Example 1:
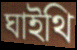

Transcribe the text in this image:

ঘাইথি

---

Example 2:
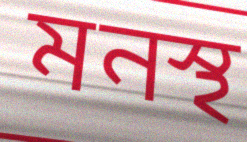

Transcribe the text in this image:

মনস্থ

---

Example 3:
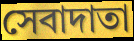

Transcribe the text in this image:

সেবাদাতা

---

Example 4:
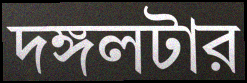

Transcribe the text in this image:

দঙ্গলটার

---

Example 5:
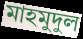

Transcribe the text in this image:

মাহমুদুল